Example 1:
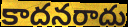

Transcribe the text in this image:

కాదనరాదు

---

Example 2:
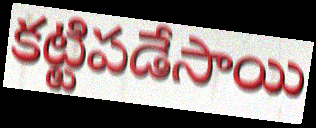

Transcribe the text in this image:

కట్టిపడేసాయి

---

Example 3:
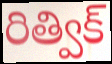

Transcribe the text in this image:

రిత్విక్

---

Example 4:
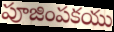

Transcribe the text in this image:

పూజింపకయు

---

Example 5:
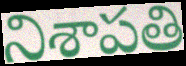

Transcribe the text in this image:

నిశాపతి